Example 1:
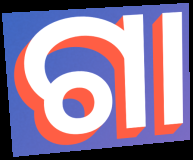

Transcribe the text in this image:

ଗା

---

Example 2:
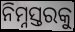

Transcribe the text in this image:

ନିମ୍ନସ୍ତରକୁ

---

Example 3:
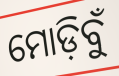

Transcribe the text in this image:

ମୋଡ଼ିବୁଁ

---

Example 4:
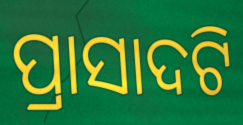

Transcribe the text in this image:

ପ୍ରାସାଦଟି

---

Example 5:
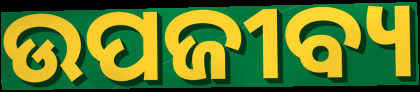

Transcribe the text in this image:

ଉପଜୀବ୍ୟ